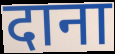
दाना